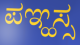
ಪಞ್ಹಸ್ಸ